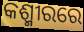
କଶ୍ମୀରରେ